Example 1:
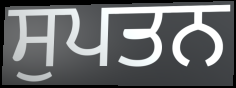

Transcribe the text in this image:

ਸੁਪਤਨ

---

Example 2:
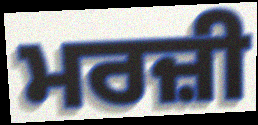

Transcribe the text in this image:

ਮਰਜ਼ੀ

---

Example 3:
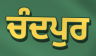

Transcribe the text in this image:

ਚੰਦਪੁਰ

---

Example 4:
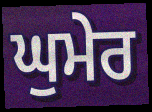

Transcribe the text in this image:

ਘੁਮੇਰ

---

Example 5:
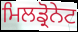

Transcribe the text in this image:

ਮਿਲਡ੍ਰੋਨੇਟ